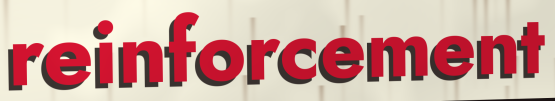
reinforcement